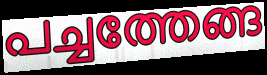
പച്ചത്തേങ്ങ